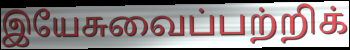
இயேசுவைப்பற்றிக்